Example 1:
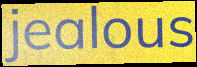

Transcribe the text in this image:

jealous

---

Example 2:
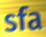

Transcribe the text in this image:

sfa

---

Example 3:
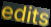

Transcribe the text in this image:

edits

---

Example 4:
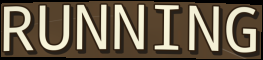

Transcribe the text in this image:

RUNNING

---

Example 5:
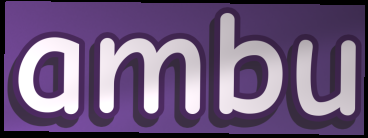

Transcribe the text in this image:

ambu